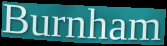
Burnham